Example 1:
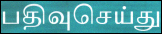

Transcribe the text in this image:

பதிவுசெய்து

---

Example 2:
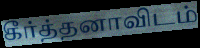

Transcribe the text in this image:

கீர்த்தனாவிடம்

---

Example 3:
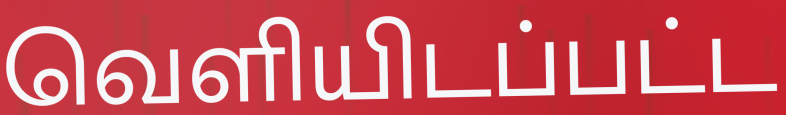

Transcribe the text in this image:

வெளியிடப்பட்ட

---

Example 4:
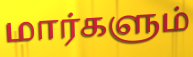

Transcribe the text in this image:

மார்களும்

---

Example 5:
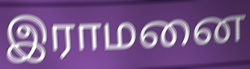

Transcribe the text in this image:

இராமனை